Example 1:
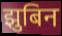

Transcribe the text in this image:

झुबिन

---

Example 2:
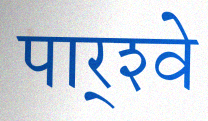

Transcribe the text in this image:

पार्श्वे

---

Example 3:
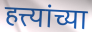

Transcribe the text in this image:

हत्त्यांच्या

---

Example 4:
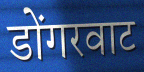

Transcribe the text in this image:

डोंगरवाट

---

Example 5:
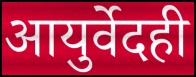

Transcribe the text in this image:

आयुर्वेदही